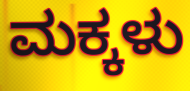
ಮಕ್ಕಳು